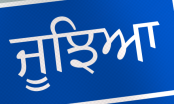
ਜੂਝਿਆ